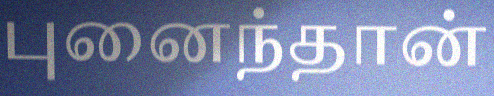
புனைந்தான்